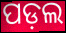
ପଡ଼ଲ